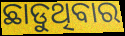
ଛାଡୁଥିବାର